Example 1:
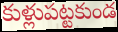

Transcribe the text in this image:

కుళ్లుపట్టకుండ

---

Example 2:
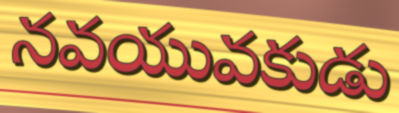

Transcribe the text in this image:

నవయువకుడు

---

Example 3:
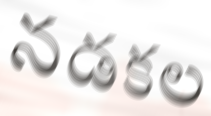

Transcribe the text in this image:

నడకల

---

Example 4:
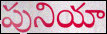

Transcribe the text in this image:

పునియా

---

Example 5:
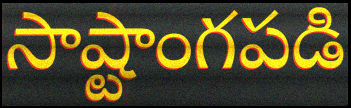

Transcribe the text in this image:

సాష్టాంగపడి